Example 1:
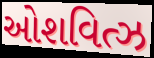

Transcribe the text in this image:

ઓશવિત્ઝ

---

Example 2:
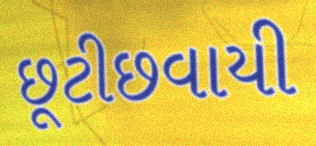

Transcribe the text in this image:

છૂટીછવાયી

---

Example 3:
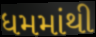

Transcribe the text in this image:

ધમમાંથી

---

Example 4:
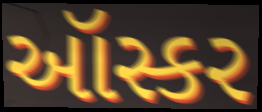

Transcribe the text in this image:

ઑસ્કર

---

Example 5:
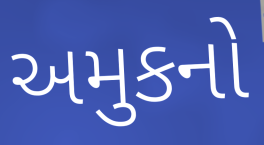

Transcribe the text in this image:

અમુકનો